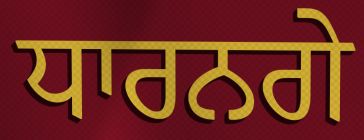
ਧਾਰਨਗੇ